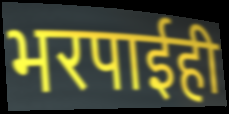
भरपाईही